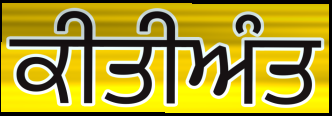
ਕੀਤੀਅੰਤ